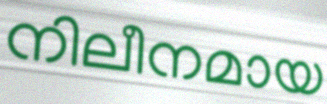
നിലീനമായ